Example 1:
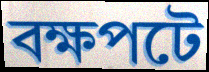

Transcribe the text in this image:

বক্ষপটে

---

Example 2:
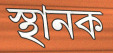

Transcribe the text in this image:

স্থানক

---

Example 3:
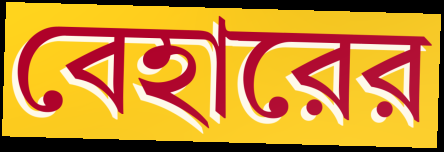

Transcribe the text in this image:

বেহারের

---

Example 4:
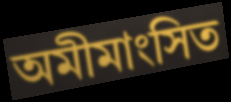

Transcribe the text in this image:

অমীমাংসিত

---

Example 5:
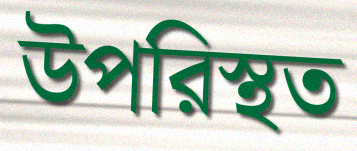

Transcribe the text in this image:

উপরিস্থত